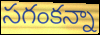
సగంకన్నా